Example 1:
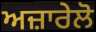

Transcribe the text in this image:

ਅਜ਼ਾਰੇਲੋ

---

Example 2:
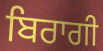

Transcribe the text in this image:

ਬਿਰਾਗੀ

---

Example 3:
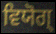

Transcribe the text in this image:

ਵਿਯੋਗ੍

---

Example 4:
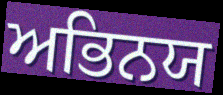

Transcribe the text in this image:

ਅਭਿਨਯ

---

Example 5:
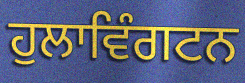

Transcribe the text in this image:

ਹੁਲਾਵਿੰਗਟਨ